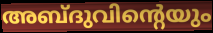
അബ്ദുവിന്റെയും